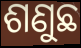
ଶଣୁଛ